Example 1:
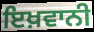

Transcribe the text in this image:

ਇਖ਼ਵਾਨੀ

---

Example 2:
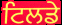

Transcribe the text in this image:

ਟਿਲਡੇ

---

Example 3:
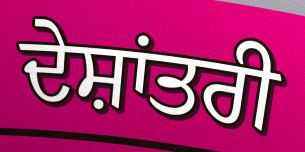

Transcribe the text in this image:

ਦੇਸ਼ਾਂਤਰੀ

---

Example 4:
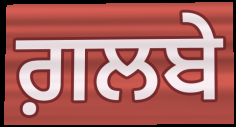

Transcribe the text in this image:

ਗ਼ਲਬੇ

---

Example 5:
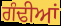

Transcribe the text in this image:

ਗੰਢੀਆਂ